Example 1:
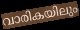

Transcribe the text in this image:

വാരികയിലും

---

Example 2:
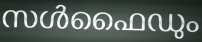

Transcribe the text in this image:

സൾഫൈഡും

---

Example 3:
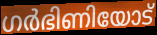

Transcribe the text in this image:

ഗർഭിണിയോട്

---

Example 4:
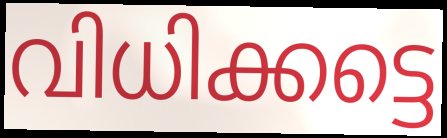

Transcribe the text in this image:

വിധിക്കട്ടെ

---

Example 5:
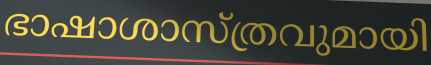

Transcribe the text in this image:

ഭാഷാശാസ്ത്രവുമായി